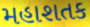
મહાશતક